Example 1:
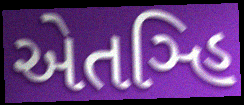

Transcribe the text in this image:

એતઞ્હિ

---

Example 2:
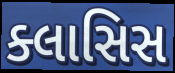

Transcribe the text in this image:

ક્લાસિસ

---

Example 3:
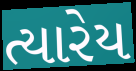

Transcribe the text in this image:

ત્યારેય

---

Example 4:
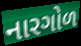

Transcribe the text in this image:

નારગોળ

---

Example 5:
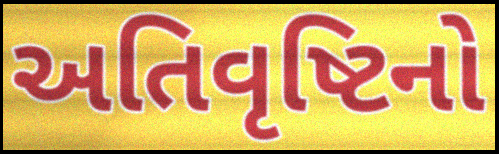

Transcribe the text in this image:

અતિવૃષ્ટિનો